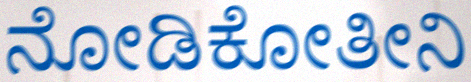
ನೋಡಿಕೋತೀನಿ